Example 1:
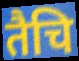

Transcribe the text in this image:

तैचि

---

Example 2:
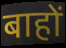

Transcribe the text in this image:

बाहों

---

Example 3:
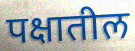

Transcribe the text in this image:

पक्षातील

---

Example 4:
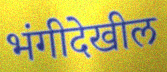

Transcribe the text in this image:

भंगीदेखील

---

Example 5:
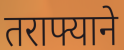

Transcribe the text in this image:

तराफ्याने